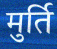
मुर्ति